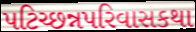
પટિચ્છન્નપરિવાસકથા